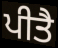
ਪੀਤੈ